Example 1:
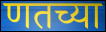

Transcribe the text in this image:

णतच्या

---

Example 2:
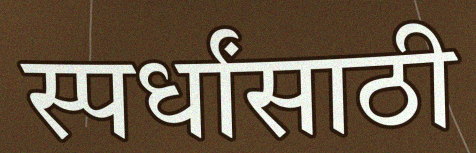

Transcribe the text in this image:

स्पर्धांसाठी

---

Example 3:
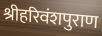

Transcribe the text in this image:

श्रीहरिवंशपुराण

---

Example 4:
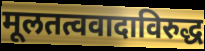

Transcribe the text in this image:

मूलतत्ववादाविरुद्ध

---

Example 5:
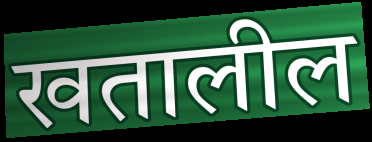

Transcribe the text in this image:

खतालील